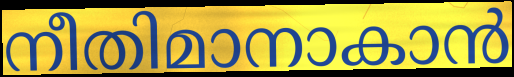
നീതിമാനാകാൻ